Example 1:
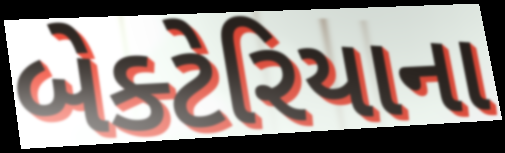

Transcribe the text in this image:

બેક્ટેરિયાના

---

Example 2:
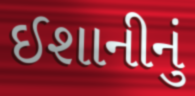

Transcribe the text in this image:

ઈશાનીનું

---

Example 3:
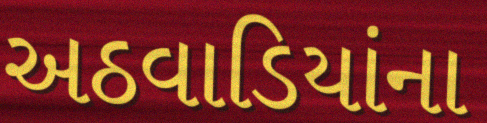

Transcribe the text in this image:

અઠવાડિયાંના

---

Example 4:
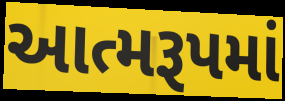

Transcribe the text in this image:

આત્મરૂપમાં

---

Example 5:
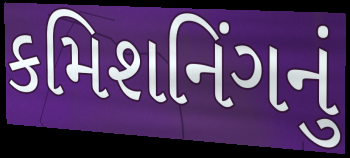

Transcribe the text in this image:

કમિશનિંગનું